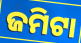
ଜମିଟା